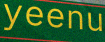
yeenu